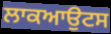
ਲਾਕਆਉਟਸ